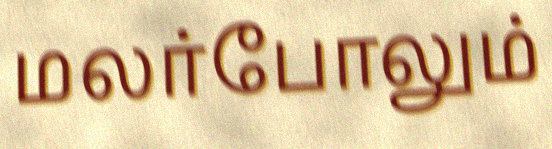
மலர்போலும்